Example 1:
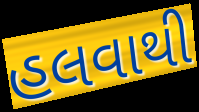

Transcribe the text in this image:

હલવાથી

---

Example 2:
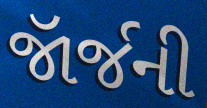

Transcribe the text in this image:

જૉર્જની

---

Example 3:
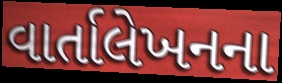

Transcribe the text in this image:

વાર્તાલેખનના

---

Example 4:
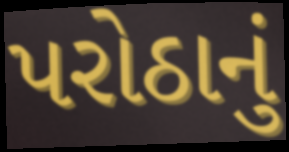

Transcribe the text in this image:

પરોઠાનું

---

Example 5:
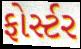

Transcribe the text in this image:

ફોર્સ્ટર